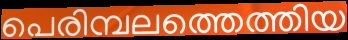
പെരിമ്പലത്തെത്തിയ